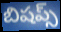
బిషప్స్